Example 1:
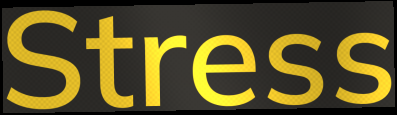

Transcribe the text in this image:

Stress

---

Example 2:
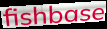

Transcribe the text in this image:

fishbase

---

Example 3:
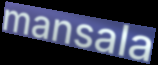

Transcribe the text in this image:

mansala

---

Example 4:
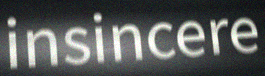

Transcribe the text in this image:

insincere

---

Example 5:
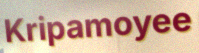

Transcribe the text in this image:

Kripamoyee